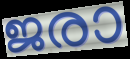
ജരാ